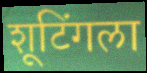
शूटिंगला